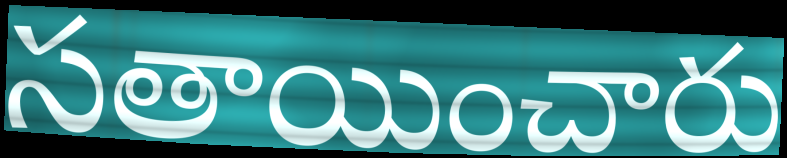
సతాయించారు